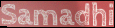
Samadhi